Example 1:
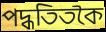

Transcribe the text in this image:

পদ্ধতিতকৈ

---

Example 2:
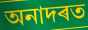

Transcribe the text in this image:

অনাদৰত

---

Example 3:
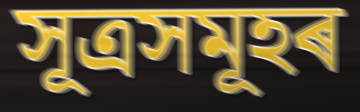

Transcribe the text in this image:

সূত্ৰসমূহৰ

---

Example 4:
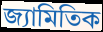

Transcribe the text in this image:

জ্যামিতিক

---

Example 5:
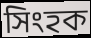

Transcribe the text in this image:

সিংহক